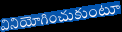
వినియోగించుకుంటూ